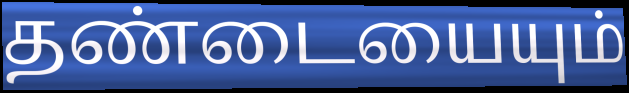
தண்டையையும்